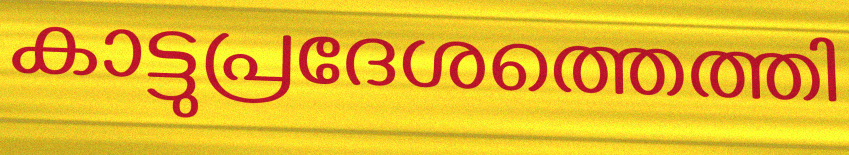
കാട്ടുപ്രദേശത്തെത്തി